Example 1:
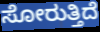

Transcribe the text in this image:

ಸೋರುತ್ತಿದೆ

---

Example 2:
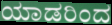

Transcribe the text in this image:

ಯಾಡರಿಂದ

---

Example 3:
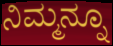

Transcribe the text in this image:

ನಿಮ್ಮನ್ನೂ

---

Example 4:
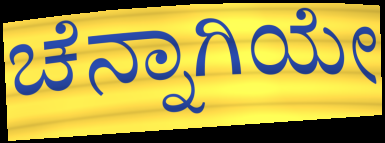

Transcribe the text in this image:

ಚೆನ್ನಾಗಿಯೇ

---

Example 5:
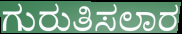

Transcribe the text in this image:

ಗುರುತಿಸಲಾರ